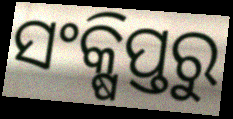
ସଂକ୍ଷିପ୍ତରୁ